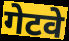
गेटवे